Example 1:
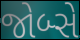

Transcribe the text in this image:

જોબ્સે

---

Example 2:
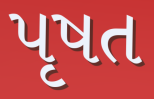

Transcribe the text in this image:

પૃષત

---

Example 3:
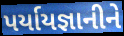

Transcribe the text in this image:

પર્યાયજ્ઞાનીને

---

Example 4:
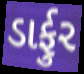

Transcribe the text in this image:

ડાર્ફુર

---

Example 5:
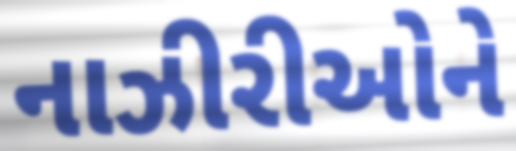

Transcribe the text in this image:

નાઝીરીઓને